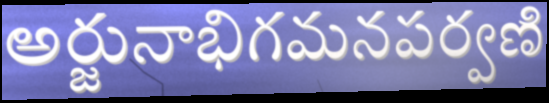
అర్జునాభిగమనపర్వణి